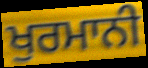
ਖੁਰਮਾਨੀ